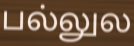
பல்லுல